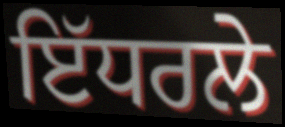
ਇੱਧਰਲੇ